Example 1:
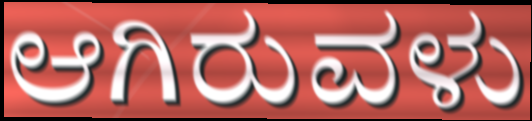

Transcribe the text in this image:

ಆಗಿರುವಳು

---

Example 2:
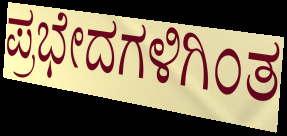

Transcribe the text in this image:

ಪ್ರಭೇದಗಳಿಗಿಂತ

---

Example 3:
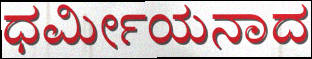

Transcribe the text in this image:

ಧರ್ಮೀಯನಾದ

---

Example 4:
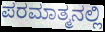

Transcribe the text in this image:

ಪರಮಾತ್ಮನಲ್ಲಿ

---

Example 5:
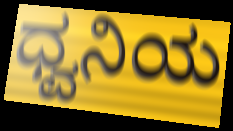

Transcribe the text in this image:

ಧ್ವನಿಯ